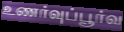
உணர்வுப்பூர்வ